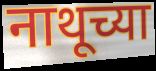
नाथूच्या